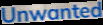
Unwanted